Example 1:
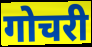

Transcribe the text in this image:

गोचरी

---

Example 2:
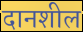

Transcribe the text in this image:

दानशील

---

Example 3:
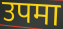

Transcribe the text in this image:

उपमा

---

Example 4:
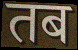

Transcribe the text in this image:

तब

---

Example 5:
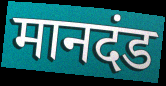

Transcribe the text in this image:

मानदंड